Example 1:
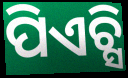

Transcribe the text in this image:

ପିଏଚ୍ସି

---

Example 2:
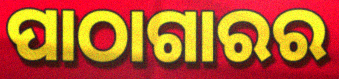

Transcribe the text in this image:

ପାଠାଗାରର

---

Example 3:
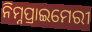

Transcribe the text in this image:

ନିମ୍ନପ୍ରାଇମେରୀ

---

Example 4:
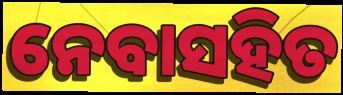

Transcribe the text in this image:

ନେବାସହିତ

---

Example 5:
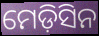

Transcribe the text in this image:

ମେଡ଼ିସିନ